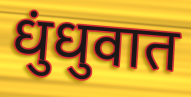
धुंधुवात